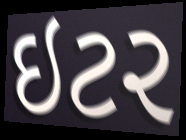
ઇટર